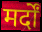
मर्दों